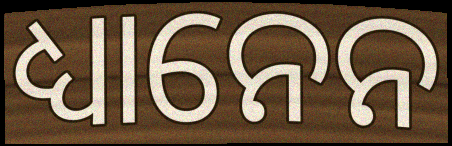
ଧ୍ୟାନେନ